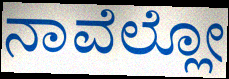
ನಾವೆಲ್ಲೋ